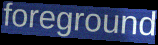
foreground